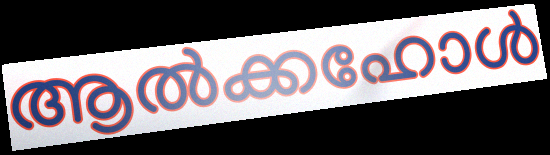
ആൽക്കഹോൾ